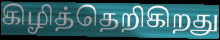
கிழித்தெறிகிறது